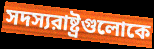
সদস্যরাষ্ট্রগুলোকে